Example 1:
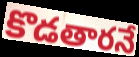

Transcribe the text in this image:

కొడతారనే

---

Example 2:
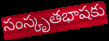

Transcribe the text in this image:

సంస్కృతభాషకు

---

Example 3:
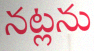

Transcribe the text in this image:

నట్లను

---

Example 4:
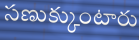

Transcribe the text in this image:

సణుక్కుంటారు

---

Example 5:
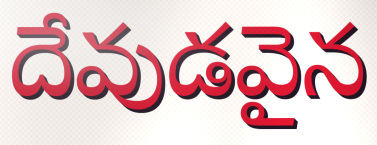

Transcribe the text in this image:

దేవుడవైన